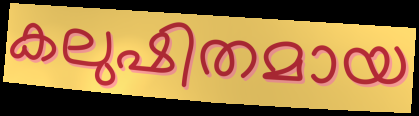
കലുഷിതമായ